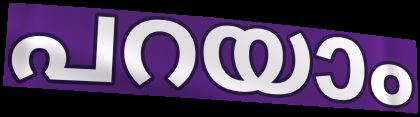
പറയാം